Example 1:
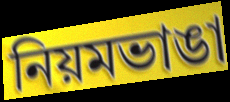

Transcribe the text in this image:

নিয়মভাঙা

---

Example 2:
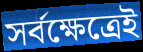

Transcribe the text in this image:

সর্বক্ষেত্রেই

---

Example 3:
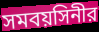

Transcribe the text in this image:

সমবয়সিনীর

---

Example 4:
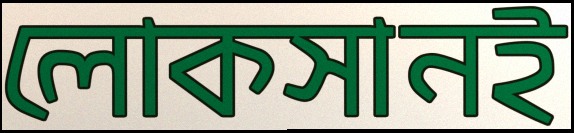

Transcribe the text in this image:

লোকসানই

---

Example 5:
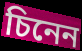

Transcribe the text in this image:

চিনেন